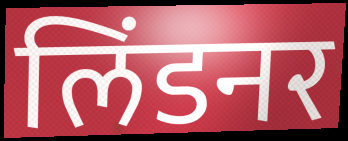
लिंडनर